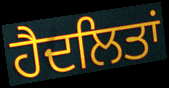
ਹੈਦਲਿਤਾਂ